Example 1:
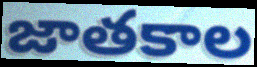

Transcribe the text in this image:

జాతకాల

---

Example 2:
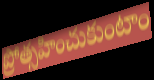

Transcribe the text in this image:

ప్రోత్సహించుకుంటాం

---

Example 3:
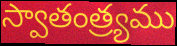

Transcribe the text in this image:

స్వాతంత్ర్యము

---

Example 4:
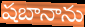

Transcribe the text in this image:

షబానాను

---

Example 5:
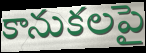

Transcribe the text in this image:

కానుకలపై